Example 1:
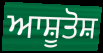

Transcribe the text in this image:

ਆਸ਼ੂਤੋਸ਼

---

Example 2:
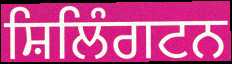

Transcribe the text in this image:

ਸ਼ਿਲਿੰਗਟਨ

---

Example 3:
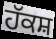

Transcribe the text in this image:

ਹੱਕਸ਼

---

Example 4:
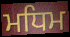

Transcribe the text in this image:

ਮਧਿਮ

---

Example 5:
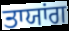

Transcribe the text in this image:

ਤਾਯਾਂਗ